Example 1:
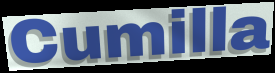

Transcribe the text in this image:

Cumilla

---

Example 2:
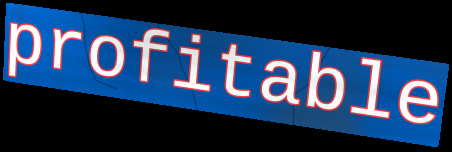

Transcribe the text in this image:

profitable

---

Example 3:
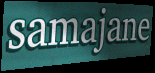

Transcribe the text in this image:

samajane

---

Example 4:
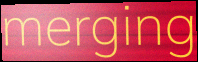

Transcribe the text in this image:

merging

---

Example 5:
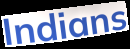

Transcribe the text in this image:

Indians